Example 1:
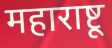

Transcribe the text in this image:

महाराष्टू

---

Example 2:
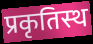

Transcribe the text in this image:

प्रकृतिस्थ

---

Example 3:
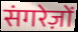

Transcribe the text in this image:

संगरेज़ों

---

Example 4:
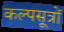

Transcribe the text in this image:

कल्पसूत्रों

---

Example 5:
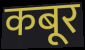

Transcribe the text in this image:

कबूर